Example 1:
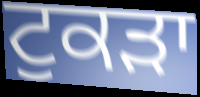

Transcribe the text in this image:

ਟੁਕਡ਼ਾ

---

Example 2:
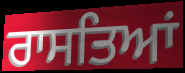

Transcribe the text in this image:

ਰਾਸਤਿਆਂ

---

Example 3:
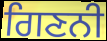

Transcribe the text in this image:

ਗਿਣਨੀ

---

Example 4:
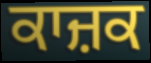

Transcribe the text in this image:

ਕਾਜ਼ਕ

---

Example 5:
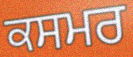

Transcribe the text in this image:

ਕਸਮਰ